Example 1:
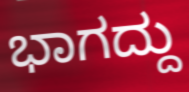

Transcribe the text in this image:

ಭಾಗದ್ದು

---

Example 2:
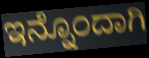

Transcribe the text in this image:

ಇನ್ನೊಂದಾಗಿ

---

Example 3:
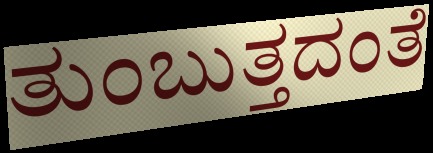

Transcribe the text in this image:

ತುಂಬುತ್ತದಂತೆ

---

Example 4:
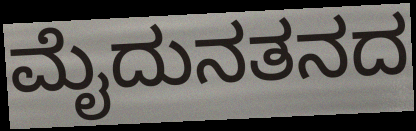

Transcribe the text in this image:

ಮೈದುನತನದ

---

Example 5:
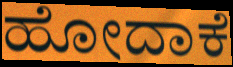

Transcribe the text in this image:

ಹೋದಾಕೆ